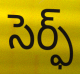
సెర్ఫ్